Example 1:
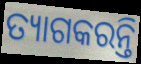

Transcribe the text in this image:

ତ୍ୟାଗକରନ୍ତି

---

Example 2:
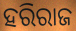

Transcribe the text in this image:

ହରିରାଜ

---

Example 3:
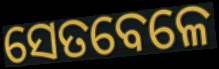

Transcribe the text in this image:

ସେତବେଳେ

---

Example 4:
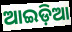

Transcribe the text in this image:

ଆଇଡ଼ିଆ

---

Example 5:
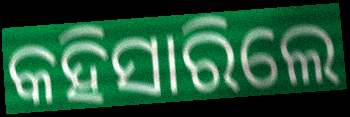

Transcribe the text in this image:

କହିସାରିଲେ